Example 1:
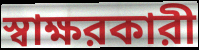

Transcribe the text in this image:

স্বাক্ষরকারী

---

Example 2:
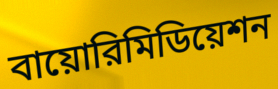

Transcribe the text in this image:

বায়োরিমিডিয়েশন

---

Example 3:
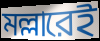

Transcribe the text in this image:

মল্লারেই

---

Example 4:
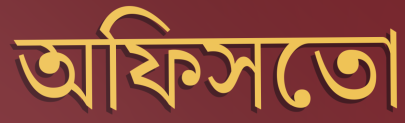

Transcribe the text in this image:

অফিসতো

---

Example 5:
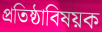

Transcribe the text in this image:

প্রতিষ্ঠাবিষয়ক